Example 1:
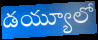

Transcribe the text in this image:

డయ్యూలో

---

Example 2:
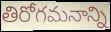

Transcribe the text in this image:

తిరోగమనాన్ని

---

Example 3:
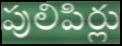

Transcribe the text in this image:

పులిపిర్లు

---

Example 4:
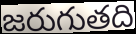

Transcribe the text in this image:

జరుగుతది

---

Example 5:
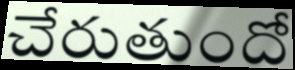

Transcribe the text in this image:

చేరుతుందో